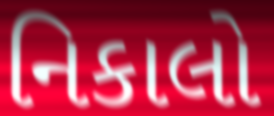
નિકાલો